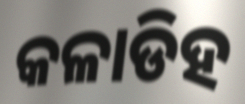
କଳାଡିହ